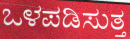
ಒಳಪಡಿಸುತ್ತ